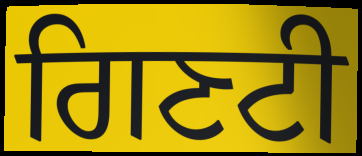
ਗਿਣਟੀ